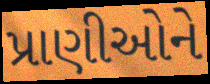
પ્રાણીઓને